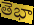
తెభా